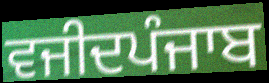
ਵਜੀਦਪੰਜਾਬ